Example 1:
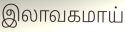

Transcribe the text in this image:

இலாவகமாய்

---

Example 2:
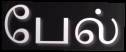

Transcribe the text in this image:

பேல்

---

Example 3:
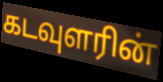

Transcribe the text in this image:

கடவுளரின்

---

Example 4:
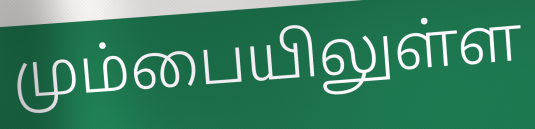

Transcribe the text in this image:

மும்பையிலுள்ள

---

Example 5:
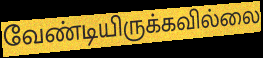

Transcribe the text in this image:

வேண்டியிருக்கவில்லை